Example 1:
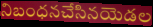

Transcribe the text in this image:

నిబంధనచేసినయెడల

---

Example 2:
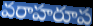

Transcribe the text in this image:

వరాహరూప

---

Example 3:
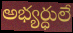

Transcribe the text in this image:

అభ్యర్ధులే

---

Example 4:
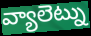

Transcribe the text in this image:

వ్యాలెట్ను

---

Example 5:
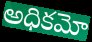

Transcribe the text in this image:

అధికమో